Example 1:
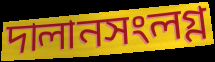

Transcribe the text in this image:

দালানসংলগ্ন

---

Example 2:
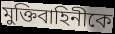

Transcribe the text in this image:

মুক্তিবাহিনীকে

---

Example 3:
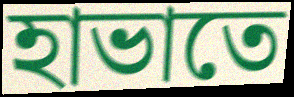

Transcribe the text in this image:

হাভাতে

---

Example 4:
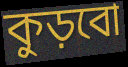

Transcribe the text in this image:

কুড়বো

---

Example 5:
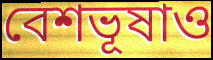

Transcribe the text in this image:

বেশভূষাও